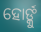
ହୋର୍ଙ୍କୁ